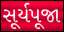
સૂર્યપૂજા